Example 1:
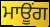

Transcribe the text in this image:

ਮਾਊਂਗ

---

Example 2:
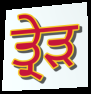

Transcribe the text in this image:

ਤ੍ਰੇੜ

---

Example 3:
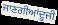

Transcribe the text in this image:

ਜਾਣਗੀਆਂਦੂਜੀ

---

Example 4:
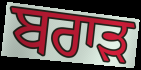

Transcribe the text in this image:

ਬਰਾਡ਼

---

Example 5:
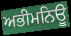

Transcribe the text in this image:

ਅਭੀਮਨਿਊ